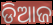
ଡିଆଜ